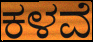
ಕಳವೆ